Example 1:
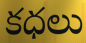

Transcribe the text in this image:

కధలు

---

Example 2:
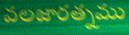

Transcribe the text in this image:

వలజారత్నము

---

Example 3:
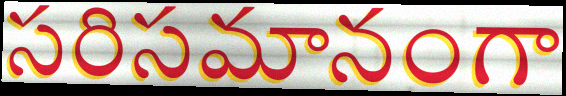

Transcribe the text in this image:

సరిసమానంగా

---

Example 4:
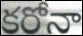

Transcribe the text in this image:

కరోనా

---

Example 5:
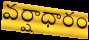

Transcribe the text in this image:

వర్షాధారం